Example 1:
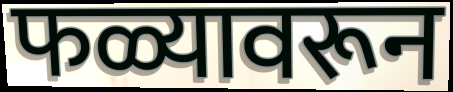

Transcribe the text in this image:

फळ्यावरून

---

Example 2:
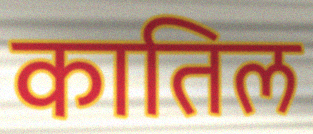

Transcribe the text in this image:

कातिल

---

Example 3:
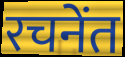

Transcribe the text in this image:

रचनेंत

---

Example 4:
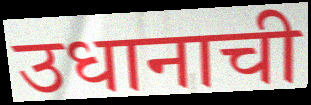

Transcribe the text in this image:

उधानाची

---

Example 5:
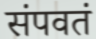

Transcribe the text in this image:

संपवतं